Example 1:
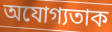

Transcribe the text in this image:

অযোগ্যতাক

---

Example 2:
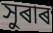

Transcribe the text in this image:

সুৰাৰ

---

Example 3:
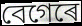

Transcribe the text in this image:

বেগেৰে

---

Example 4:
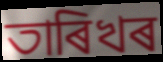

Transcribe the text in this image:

তাৰিখৰ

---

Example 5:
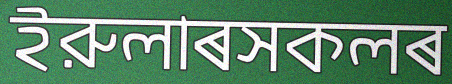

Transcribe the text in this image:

ইৰুলাৰসকলৰ